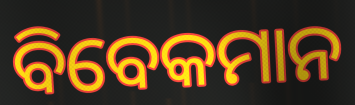
ବିବେକମାନ